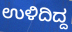
ಉಳಿದಿದ್ದ